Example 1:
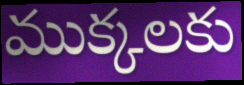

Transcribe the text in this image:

ముక్కలకు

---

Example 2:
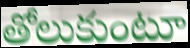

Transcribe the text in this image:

తోలుకుంటూ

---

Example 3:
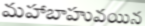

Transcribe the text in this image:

మహాబాహువయిన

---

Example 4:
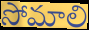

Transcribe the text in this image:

సోమాలి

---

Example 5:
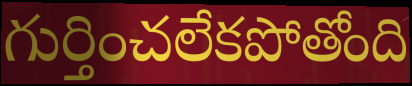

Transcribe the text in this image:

గుర్తించలేకపోతోంది